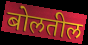
बोलतील